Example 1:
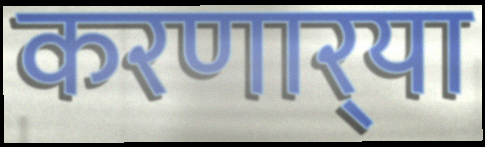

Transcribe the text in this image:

करणार्‍या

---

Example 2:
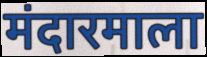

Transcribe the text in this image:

मंदारमाला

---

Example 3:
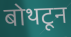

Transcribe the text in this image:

बोथटून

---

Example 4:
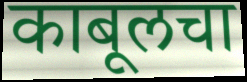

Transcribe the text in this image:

काबूलचा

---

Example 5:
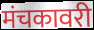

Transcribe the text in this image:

मंचकावरी